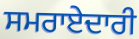
ਸਮਰਾਏਦਾਰੀ